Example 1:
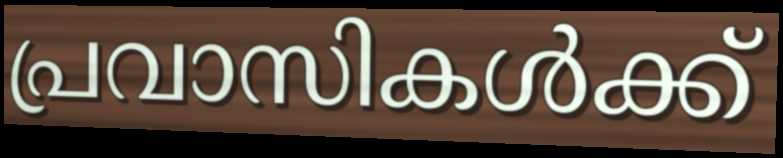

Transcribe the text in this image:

പ്രവാസികൾക്ക്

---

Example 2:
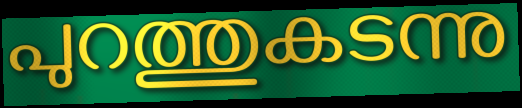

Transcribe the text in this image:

പുറത്തുകടന്നു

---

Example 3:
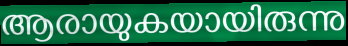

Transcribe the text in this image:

ആരായുകയായിരുന്നു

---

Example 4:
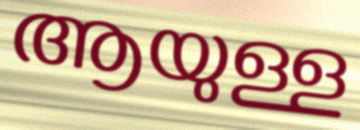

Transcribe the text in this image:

ആയുള്ള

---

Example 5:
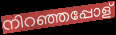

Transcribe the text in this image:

നിറഞ്ഞപ്പോള്